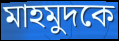
মাহমুদকে